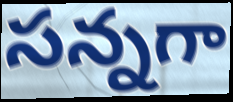
సన్నగా